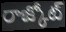
రాజ్కోట్